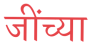
जींच्या